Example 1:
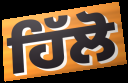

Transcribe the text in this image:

ਹਿੱਲੋ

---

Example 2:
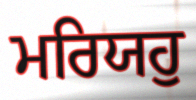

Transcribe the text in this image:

ਮਰਿਯਹੁ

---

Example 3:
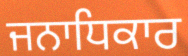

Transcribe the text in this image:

ਜਨਾਧਿਕਾਰ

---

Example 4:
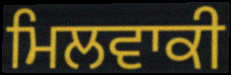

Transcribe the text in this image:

ਮਿਲਵਾਕੀ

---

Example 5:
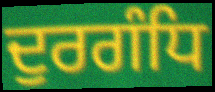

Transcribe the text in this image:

ਦੁਰਗੰਧਿ